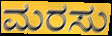
ಮರಸು